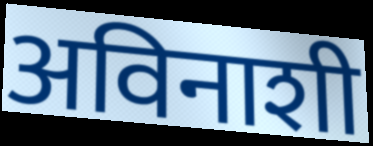
अविनाशी